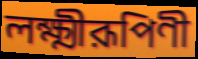
লক্ষ্মীরূপিণী